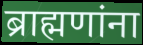
ब्राह्मणांना